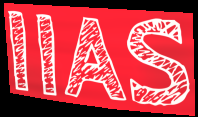
IIAS